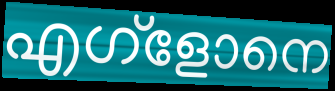
എഗ്ളോനെ